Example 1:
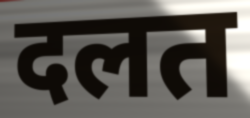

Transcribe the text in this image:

दलत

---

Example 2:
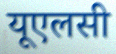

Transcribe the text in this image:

यूएलसी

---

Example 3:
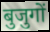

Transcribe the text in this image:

बुजुगों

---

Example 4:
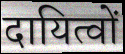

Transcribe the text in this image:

दायित्वों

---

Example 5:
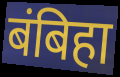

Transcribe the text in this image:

बंबिहा